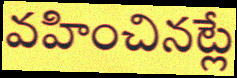
వహించినట్లే